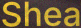
Shea